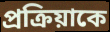
প্রক্রিয়াকে